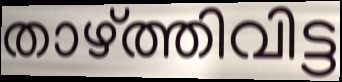
താഴ്ത്തിവിട്ട